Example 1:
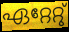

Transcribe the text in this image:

ഏറ്റേറ്റു്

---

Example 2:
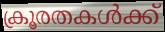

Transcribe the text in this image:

ക്രൂരതകൾക്ക്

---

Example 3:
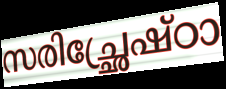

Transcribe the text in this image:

സരിച്ഛ്രേഷ്ഠാ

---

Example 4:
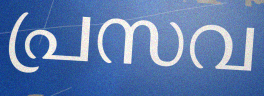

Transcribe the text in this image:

പ്രസവ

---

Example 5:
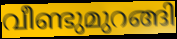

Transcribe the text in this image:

വീണ്ടുമുറങ്ങി